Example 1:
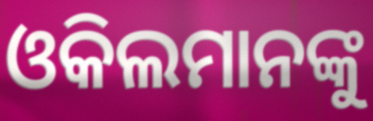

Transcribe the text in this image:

ଓକିଲମାନଙ୍କୁ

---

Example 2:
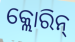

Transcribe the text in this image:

କ୍ଲୋରିନ୍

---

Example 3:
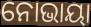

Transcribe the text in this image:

ନୋଭାୟା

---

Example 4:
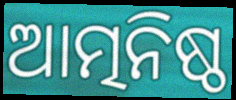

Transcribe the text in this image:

ଆତ୍ମନିଷ୍ଠ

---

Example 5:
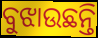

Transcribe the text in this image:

ବୁଝାଉଛନ୍ତି